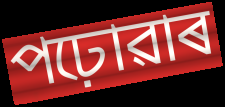
পঢ়োৱাৰ